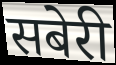
सबेरी